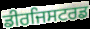
ਡੀਰਜਿਸਟਰਡ